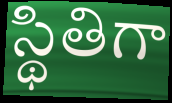
స్థితిగా